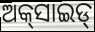
ଅକ୍‌ସାଇଡ୍